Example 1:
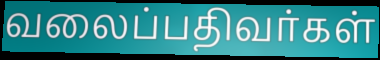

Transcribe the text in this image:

வலைப்பதிவர்கள்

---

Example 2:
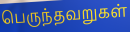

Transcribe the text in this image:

பெருந்தவறுகள்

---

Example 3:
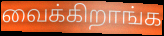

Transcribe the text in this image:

வைக்கிறாங்க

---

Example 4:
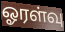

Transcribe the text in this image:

ஓரள்வு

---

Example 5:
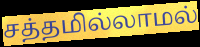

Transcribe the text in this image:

சத்தமில்லாமல்